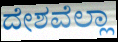
ದೇಶವೆಲ್ಲಾ